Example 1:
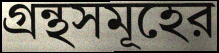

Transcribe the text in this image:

গ্রন্থসমূহের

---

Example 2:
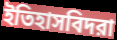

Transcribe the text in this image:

ইতিহাসবিদরা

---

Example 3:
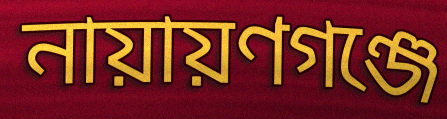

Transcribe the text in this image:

নায়ায়ণগঞ্জে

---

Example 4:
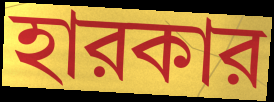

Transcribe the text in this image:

হারকার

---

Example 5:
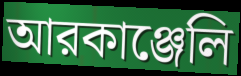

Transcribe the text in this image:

আরকাঞ্জেলি